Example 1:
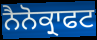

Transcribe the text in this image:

ਨੈਨੋਕ੍ਰਾਫਟ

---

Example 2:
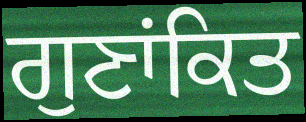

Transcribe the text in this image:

ਗੁਣਾਂਕਿਤ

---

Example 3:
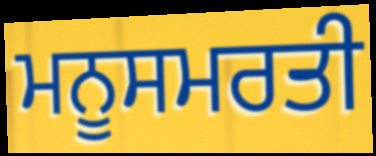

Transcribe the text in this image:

ਮਨੂਸਮਰਤੀ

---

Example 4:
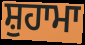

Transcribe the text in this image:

ਸ਼ੁਹਾਮਾ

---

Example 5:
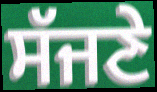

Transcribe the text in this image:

ਸੱਜਣੇ